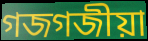
গজগজীয়া